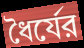
ধৈর্যের